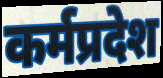
कर्मप्रदेश